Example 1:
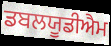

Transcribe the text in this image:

ਡਬਲਯੂਡੀਐਮ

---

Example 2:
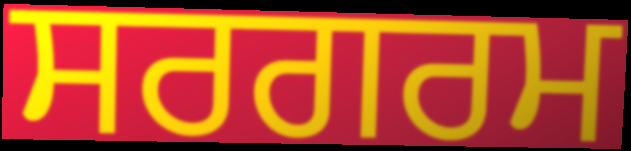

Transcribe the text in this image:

ਸਰਗਰਮ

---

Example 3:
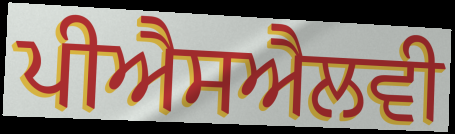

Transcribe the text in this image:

ਪੀਐਸਐਲਵੀ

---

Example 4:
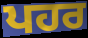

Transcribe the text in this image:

ਪਹਰ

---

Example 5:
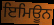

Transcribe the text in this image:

ਇਮਿਊਨ